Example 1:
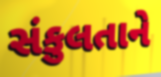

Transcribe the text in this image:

સંકુલતાને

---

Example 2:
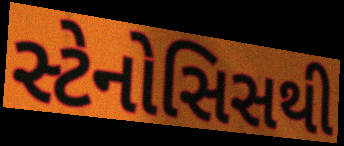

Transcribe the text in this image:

સ્ટેનોસિસથી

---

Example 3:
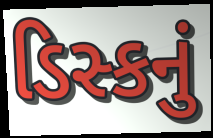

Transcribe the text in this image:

ડિસ્કનું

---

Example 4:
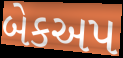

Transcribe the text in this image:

બેકઅપ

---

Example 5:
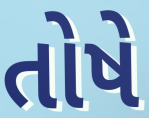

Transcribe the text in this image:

તોષે